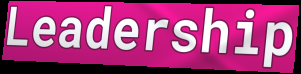
Leadership